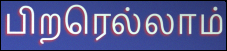
பிறரெல்லாம்